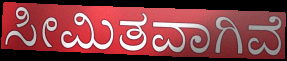
ಸೀಮಿತವಾಗಿವೆ